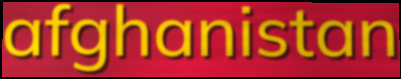
afghanistan